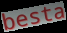
besta